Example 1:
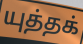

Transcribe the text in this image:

யுத்தக்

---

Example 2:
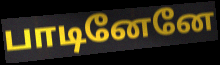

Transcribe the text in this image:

பாடினேனே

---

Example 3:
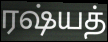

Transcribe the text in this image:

ரஷ்யத்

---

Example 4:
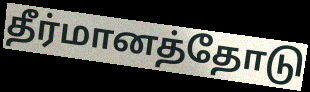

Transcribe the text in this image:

தீர்மானத்தோடு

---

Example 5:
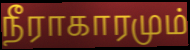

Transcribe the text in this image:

நீராகாரமும்